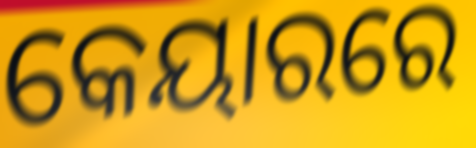
କେୟାରରେ